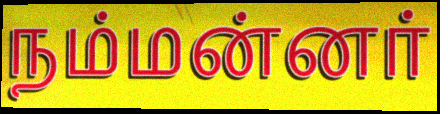
நம்மன்னர்